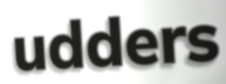
udders